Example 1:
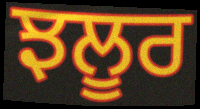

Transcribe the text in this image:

ਝਲੂਰ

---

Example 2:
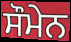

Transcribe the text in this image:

ਸੌਮੇਨ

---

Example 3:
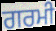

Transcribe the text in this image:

ਗਰਮੀ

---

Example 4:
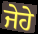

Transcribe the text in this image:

ਜੇਹੇ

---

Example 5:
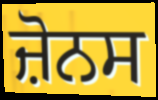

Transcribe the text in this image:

ਜ਼ੋਨਸ